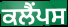
ਕਲੈਂਪਸ